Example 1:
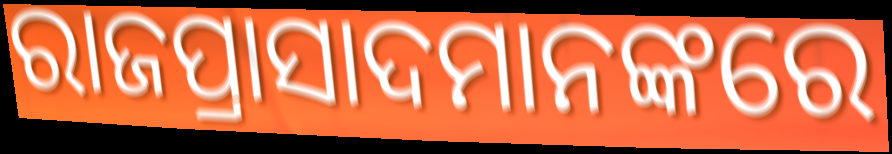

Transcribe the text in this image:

ରାଜପ୍ରାସାଦମାନଙ୍କରେ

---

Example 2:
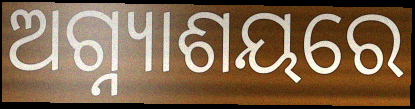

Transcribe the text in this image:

ଅଗ୍ନ୍ୟାଶୟରେ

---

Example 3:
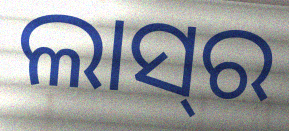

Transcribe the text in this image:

ଲାସ୍‍ର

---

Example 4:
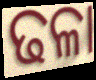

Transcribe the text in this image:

ଢଳା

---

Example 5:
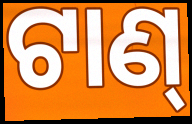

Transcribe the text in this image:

ଟାଣ୍